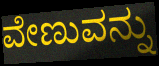
ವೇಣುವನ್ನು